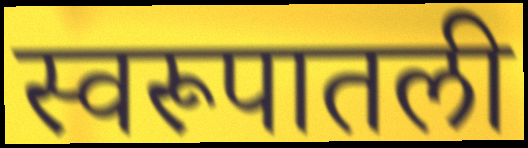
स्वरूपातली